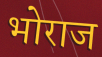
भोराज